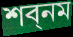
শব্নম